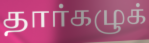
தார்கழுக்